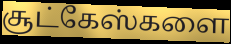
சூட்கேஸ்களை